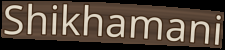
Shikhamani